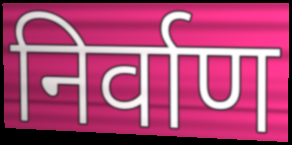
निर्वाण